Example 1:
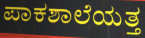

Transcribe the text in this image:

ಪಾಕಶಾಲೆಯತ್ತ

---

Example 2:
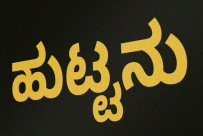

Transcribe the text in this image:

ಹುಟ್ಟನು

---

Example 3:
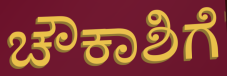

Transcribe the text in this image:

ಚೌಕಾಶಿಗೆ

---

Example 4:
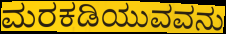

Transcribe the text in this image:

ಮರಕಡಿಯುವವನು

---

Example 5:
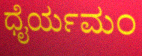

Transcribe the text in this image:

ಧೈರ್ಯಮಂ